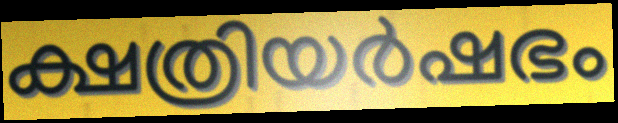
ക്ഷത്രിയർഷഭം